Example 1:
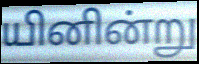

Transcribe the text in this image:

யினின்று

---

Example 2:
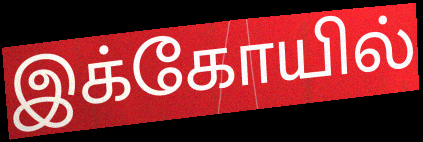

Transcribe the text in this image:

இக்கோயில்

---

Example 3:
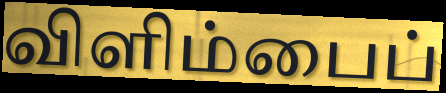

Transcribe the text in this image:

விளிம்பைப்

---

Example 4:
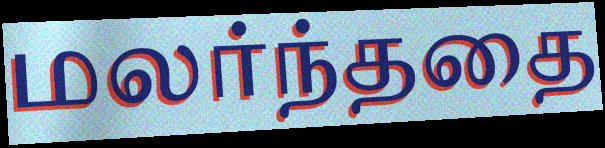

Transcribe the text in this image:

மலர்ந்ததை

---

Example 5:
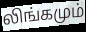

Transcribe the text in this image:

லிங்கமும்